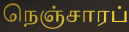
நெஞ்சாரப்